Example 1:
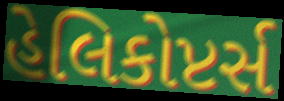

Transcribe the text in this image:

હેલિકોપ્ટર્સ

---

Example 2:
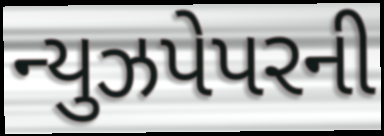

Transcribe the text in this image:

ન્યુઝપેપરની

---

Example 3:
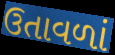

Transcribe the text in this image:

ઉતાવળાં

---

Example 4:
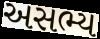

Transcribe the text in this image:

અસભ્ય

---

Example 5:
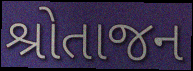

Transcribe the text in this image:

શ્રોતાજન